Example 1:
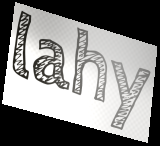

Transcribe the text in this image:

lahy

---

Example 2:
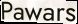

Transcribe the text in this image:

Pawars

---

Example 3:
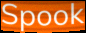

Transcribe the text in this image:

Spook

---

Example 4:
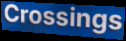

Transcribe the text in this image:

Crossings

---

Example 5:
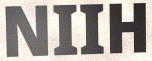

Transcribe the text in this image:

NIIH